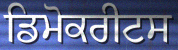
ਡਿਮੋਕਰੀਟਸ